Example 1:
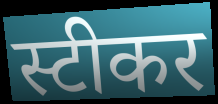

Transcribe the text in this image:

स्टीकर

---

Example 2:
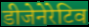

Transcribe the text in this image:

डीजेनेरेटिव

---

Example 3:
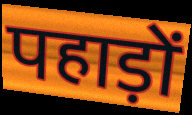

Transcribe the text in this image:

पहाड़ों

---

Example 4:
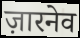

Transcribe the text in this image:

ज़ारनेव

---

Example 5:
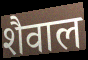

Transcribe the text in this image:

शैवाल